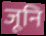
जूनि